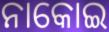
ନାକୋଇ